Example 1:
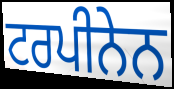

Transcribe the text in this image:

ਟਰਪੀਨੇਨ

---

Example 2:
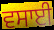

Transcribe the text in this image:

ਵਸਾਈ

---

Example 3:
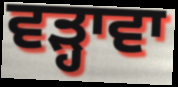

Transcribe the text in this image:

ਵੜ੍ਹਾਵਾ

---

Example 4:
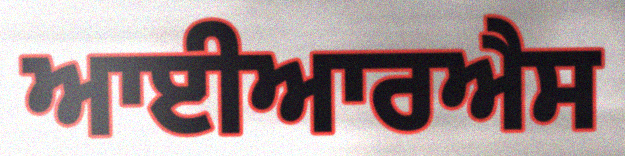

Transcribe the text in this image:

ਆਈਆਰਐਸ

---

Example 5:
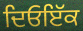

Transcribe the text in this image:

ਦਿਓਇੱਕ